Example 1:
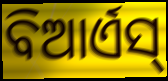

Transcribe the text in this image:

ବିଆର୍ଏସ୍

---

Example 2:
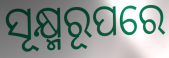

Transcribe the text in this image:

ସୂକ୍ଷ୍ମରୂପରେ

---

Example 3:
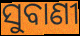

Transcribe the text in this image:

ସୁବାଣୀ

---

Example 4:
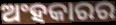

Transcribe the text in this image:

ଅଂହକାରର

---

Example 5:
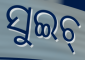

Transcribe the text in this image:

ସୁଇଚ୍